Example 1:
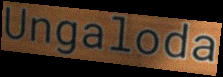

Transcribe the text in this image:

Ungaloda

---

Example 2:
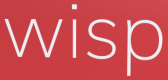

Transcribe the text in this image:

wisp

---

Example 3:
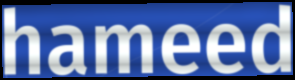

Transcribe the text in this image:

hameed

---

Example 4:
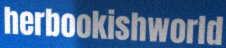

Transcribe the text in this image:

herbookishworld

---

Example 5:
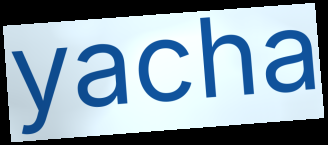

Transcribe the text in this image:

yacha